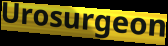
Urosurgeon